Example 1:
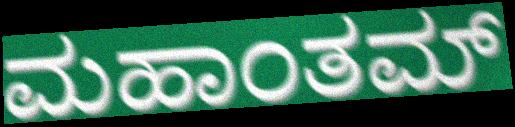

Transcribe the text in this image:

ಮಹಾಂತಮ್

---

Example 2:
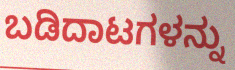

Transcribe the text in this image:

ಬಡಿದಾಟಗಳನ್ನು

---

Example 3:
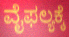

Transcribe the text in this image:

ವೈಫಲ್ಯಕ್ಕೆ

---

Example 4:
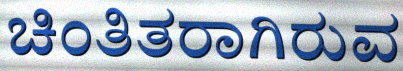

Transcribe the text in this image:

ಚಿಂತಿತರಾಗಿರುವ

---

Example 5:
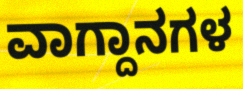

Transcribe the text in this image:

ವಾಗ್ದಾನಗಳ